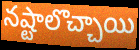
నష్టాలొచ్చాయి